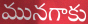
మునగాకు